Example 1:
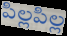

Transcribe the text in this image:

పిల్లపిల్ల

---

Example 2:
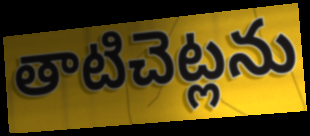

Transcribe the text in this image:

తాటిచెట్లను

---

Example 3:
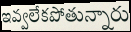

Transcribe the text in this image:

ఇవ్వలేకపోతున్నారు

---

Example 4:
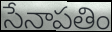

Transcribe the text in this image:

సేనాపతిం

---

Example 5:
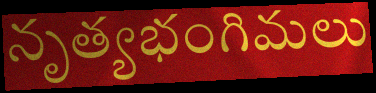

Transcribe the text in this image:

నృత్యభంగిమలు